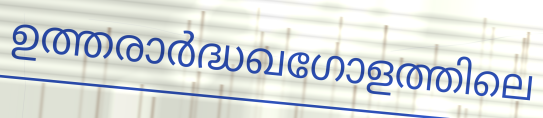
ഉത്തരാർദ്ധഖഗോളത്തിലെ